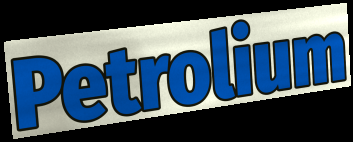
Petrolium